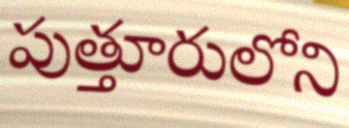
పుత్తూరులోని